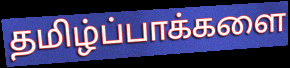
தமிழ்ப்பாக்களை